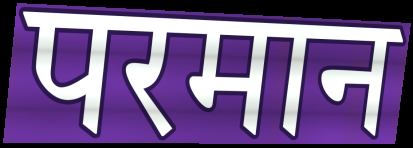
परमान